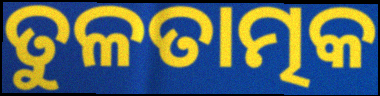
ତୁଳତାତ୍ମକ